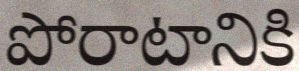
పోరాటానికి